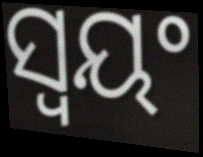
ସ୍ଵୟଂ